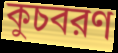
কুচবরণ